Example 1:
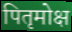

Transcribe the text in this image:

पितृमोक्ष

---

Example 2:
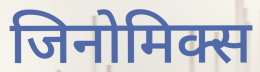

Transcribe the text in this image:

जिनोमिक्स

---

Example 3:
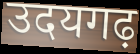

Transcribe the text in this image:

उदयगढ़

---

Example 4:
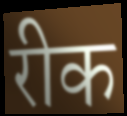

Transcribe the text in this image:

रीक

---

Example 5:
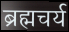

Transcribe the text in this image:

ब्रह्मचर्य